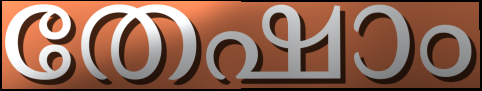
തേഷാം